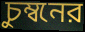
চুম্বনের